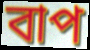
বাপ